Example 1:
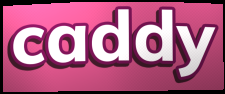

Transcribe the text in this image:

caddy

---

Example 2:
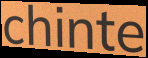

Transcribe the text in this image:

chinte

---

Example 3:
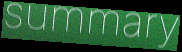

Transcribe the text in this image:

summary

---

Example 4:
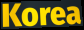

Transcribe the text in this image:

Korea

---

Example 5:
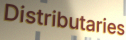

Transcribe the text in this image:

Distributaries